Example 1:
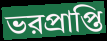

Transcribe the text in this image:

ভরপ্রাপ্তি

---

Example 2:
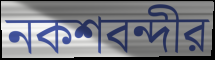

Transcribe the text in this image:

নকশবন্দীর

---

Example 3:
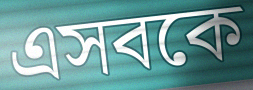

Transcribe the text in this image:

এসবকে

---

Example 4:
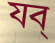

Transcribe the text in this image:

যব্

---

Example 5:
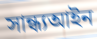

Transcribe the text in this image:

সান্ধ্যআইন